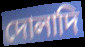
দোলাদি